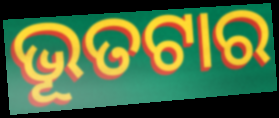
ଭୂତଟାର